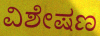
ವಿಶೇಷಣ